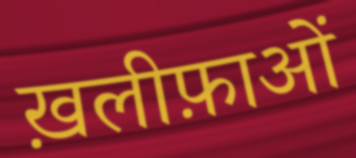
ख़लीफ़ाओं